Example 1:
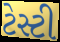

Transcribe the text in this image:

ટેસ્ટી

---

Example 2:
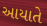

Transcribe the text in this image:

આયાતે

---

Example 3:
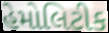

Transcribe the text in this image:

હેમોલિટીક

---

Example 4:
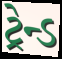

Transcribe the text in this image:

ટ્રેન્ડ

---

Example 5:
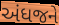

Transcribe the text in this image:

અંધજને